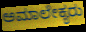
ಅಮಾಲೇಕ್ಯರು